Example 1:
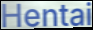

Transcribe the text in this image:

Hentai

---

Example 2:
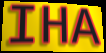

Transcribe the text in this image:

IHA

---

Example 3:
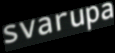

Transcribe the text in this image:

svarupa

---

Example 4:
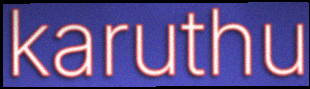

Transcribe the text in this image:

karuthu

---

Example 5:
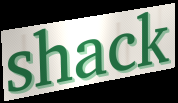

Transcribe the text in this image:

shack